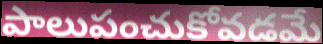
పాలుపంచుకోవడమే